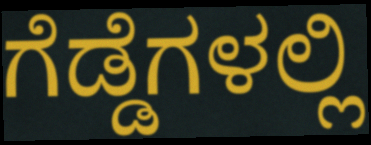
ಗೆಡ್ಡೆಗಳಲ್ಲಿ